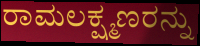
ರಾಮಲಕ್ಷ್ಮಣರನ್ನು